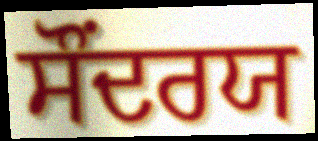
ਸੌਂਦਰਯ